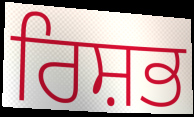
ਰਿਸ਼ਭ